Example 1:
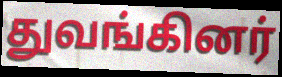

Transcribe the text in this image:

துவங்கினர்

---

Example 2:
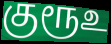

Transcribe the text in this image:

குரூஉ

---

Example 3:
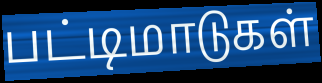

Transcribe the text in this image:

பட்டிமாடுகள்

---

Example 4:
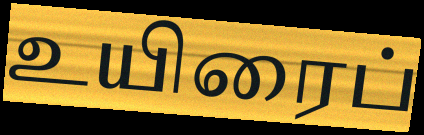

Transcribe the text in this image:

உயிரைப்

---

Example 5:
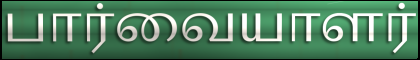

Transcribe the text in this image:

பார்வையாளர்